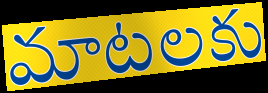
మాటలకు